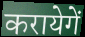
करायेगें